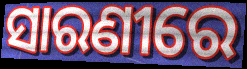
ସାରଣୀରେ